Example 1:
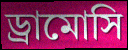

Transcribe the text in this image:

ড্রামোসি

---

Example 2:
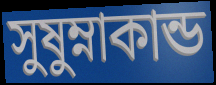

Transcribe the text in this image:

সুষুম্নাকান্ড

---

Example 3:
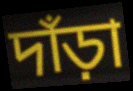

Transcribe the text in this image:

দাঁড়া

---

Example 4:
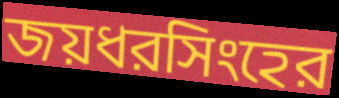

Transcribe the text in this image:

জয়ধরসিংহের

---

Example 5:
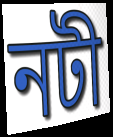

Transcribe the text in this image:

নটী